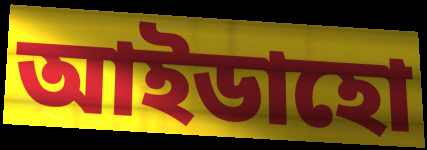
আইডাহো